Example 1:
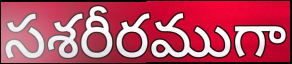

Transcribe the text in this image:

సశరీరముగా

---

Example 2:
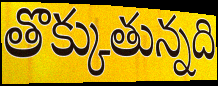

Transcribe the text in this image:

తొక్కుతున్నది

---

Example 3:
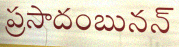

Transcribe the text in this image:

ప్రసాదంబునన్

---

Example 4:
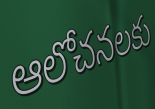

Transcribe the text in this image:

ఆలోచనలకు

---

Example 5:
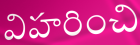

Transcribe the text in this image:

విహరించి